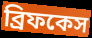
ব্রিফকেস